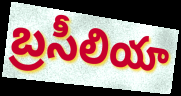
బ్రసీలియా